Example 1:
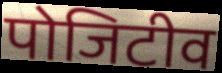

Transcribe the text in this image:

पोजिटीव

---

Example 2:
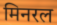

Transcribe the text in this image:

मिनरल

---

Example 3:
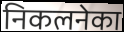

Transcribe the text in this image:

निकलनेका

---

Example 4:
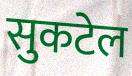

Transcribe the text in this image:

सुकटेल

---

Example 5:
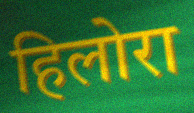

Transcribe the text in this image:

हिलोरा